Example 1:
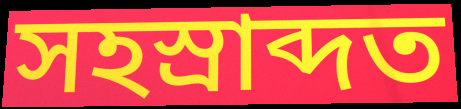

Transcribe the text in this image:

সহস্ৰাব্দত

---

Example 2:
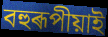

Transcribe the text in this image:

বহুৰূপীয়াই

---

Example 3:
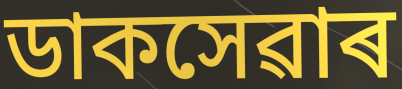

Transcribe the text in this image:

ডাকসেৱাৰ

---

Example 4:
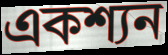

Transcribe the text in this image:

একশ্যন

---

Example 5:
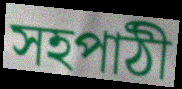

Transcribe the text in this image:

সহপাঠী